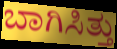
ಬಾಗಿಸಿತ್ತು